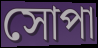
সোপা